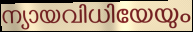
ന്യായവിധിയേയും